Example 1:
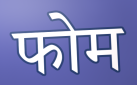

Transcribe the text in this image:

फोम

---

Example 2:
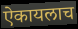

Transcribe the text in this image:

ऐकायलाच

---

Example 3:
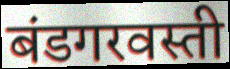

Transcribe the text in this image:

बंडगरवस्ती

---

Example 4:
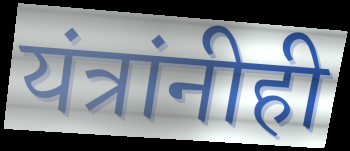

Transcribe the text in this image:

यंत्रांनीही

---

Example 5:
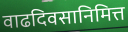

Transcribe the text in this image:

वाढदिवसानिमित्त